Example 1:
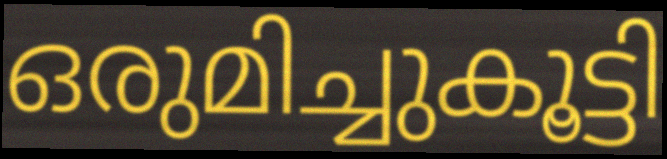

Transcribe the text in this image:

ഒരുമിച്ചുകൂട്ടി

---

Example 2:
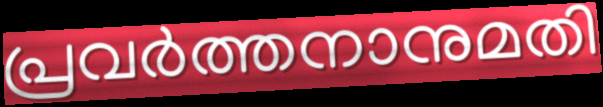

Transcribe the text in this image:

പ്രവർത്തനാനുമതി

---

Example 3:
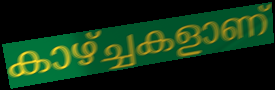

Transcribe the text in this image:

കാഴ്ച്ചകളാണ്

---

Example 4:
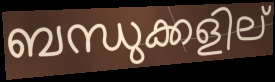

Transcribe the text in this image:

ബന്ധുക്കളില്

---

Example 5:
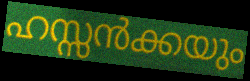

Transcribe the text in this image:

ഹസ്സൻക്കയും